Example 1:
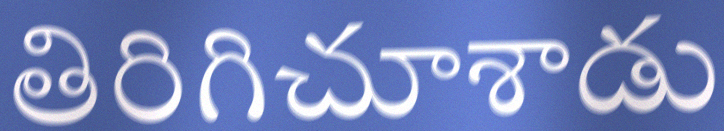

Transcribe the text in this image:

తిరిగిచూశాడు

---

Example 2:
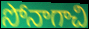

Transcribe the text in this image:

సోనాగాచి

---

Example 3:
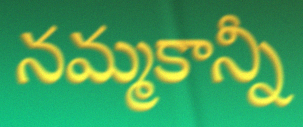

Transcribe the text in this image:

నమ్మకాన్నీ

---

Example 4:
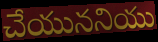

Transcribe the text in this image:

చేయుననియు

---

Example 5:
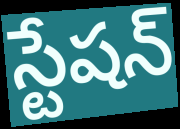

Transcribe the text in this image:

స్టేషన్